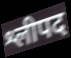
श्लीपद